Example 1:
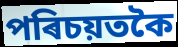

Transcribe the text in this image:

পৰিচয়তকৈ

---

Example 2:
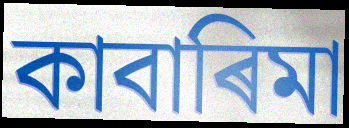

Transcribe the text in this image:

কাবাৰিমা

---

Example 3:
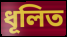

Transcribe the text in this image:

ধূলিত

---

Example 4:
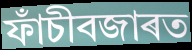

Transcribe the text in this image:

ফাঁচীবজাৰত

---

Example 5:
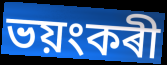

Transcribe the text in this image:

ভয়ংকৰী